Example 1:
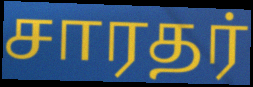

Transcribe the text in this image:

சாரதர்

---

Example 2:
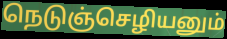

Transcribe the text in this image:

நெடுஞ்செழியனும்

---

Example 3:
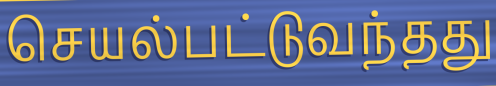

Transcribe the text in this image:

செயல்பட்டுவந்தது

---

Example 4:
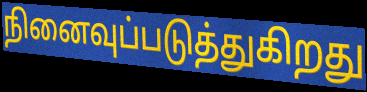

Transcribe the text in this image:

நினைவுப்படுத்துகிறது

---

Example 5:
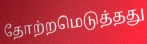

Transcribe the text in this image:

தோற்றமெடுத்தது